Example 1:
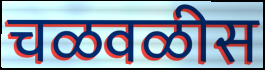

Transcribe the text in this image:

चळवळीस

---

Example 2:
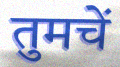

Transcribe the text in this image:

तुमचें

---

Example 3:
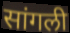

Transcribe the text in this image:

सांगली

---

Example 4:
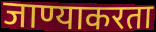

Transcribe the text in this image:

जाण्याकरता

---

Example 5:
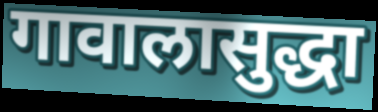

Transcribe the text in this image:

गावालासुद्धा